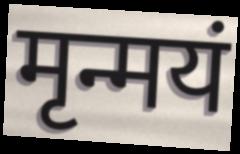
मृन्मयं